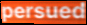
persued